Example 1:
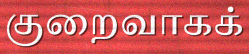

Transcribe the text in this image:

குறைவாகக்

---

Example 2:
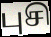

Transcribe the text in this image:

புசி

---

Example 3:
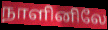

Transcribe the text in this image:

நாளினிலே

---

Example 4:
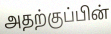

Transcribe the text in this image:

அதற்குப்பின்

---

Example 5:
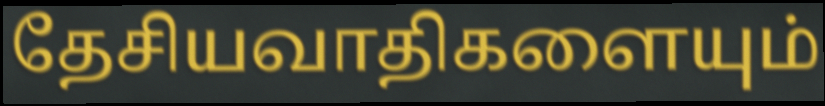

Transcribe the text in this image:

தேசியவாதிகளையும்